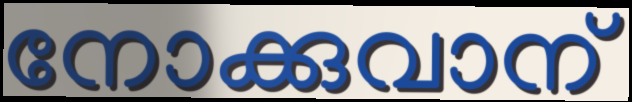
നോക്കുവാന്